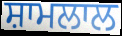
ਸ਼ਾਮਲਾਲ